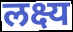
लक्ष्य